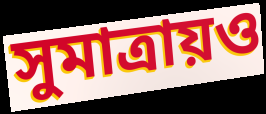
সুমাত্রায়ও